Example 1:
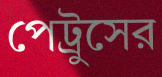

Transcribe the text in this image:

পেট্রুসের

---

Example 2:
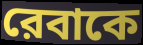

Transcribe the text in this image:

রেবাকে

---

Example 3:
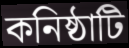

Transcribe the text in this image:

কনিষ্ঠাটি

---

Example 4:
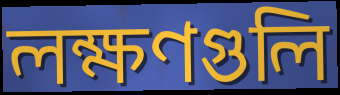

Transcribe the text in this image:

লক্ষণগুলি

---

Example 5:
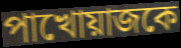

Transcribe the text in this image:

পাখোয়াজকে